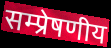
सम्प्रेषणीय